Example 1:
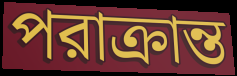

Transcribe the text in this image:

পরাক্রান্ত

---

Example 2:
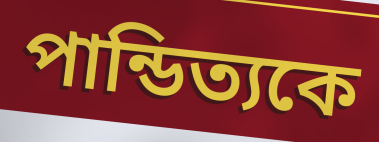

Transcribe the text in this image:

পান্ডিত্যকে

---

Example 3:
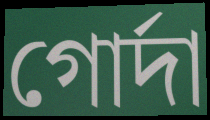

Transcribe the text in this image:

গোর্দা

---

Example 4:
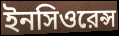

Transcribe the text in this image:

ইনসিওরেন্স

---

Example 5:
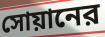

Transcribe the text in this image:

সোয়ানের